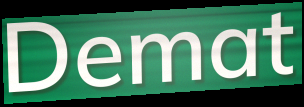
Demat